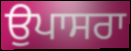
ਉਪਾਸਰਾ